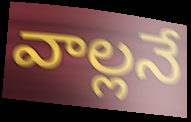
వాల్లనే